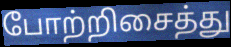
போற்றிசைத்து